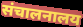
संचालनालय